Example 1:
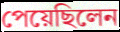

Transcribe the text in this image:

পেয়েছিলেন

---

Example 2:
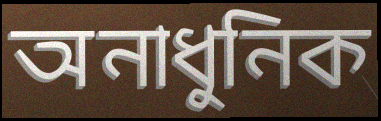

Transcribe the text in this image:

অনাধুনিক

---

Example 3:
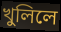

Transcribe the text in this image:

খুলিলে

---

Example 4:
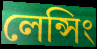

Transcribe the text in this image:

লেন্সিং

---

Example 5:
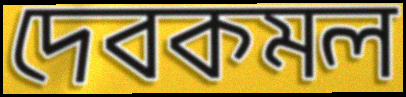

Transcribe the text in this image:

দেবকমল